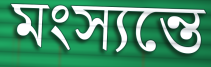
মংস্যন্তে